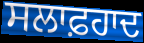
ਸਲਾਫ਼ਹਾਦ